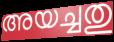
അയച്ചതു